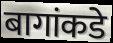
बागांकडे